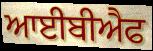
ਆਈਬੀਐਫ